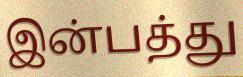
இன்பத்து